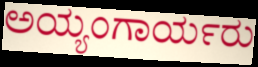
ಅಯ್ಯಂಗಾರ್ಯರು